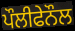
ਪੌਲੀਫੇਨੌਲ